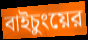
বাইচুংয়ের